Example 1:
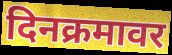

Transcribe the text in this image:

दिनक्रमावर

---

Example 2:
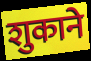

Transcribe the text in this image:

शुकाने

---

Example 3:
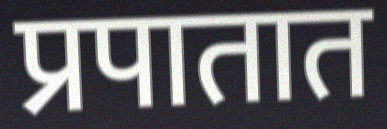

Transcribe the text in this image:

प्रपातात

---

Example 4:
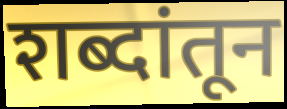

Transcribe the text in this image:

शब्दांतून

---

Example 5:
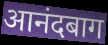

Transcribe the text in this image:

आनंदबाग